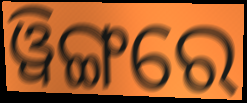
ୱିଙ୍ଗରେ